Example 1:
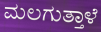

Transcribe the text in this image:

ಮಲಗುತ್ತಾಳೆ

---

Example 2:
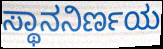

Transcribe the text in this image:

ಸ್ಥಾನನಿರ್ಣಯ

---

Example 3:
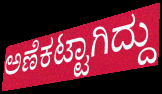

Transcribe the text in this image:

ಅಣೆಕಟ್ಟಾಗಿದ್ದು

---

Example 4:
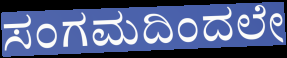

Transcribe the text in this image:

ಸಂಗಮದಿಂದಲೇ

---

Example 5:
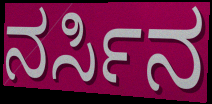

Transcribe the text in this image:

ನರ್ಸಿನ